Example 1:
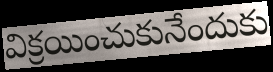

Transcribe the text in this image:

విక్రయించుకునేందుకు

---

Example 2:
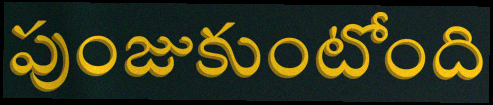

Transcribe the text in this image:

పుంజుకుంటోంది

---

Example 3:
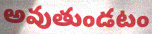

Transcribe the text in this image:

అవుతుండటం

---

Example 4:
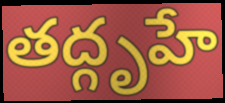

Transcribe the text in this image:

తద్గృహే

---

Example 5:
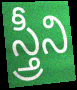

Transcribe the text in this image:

స్త్రీని